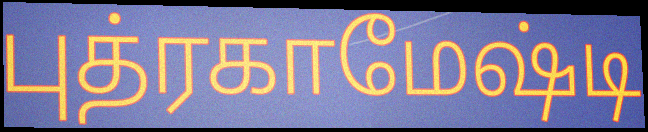
புத்ரகாமேஷ்டி